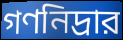
গণনিদ্রার